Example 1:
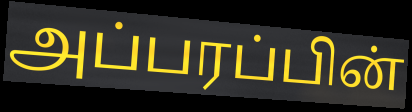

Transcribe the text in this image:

அப்பரப்பின்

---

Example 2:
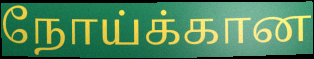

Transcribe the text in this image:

நோய்க்கான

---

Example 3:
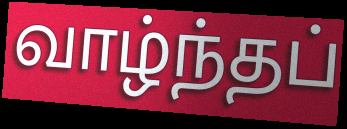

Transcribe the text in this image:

வாழ்ந்தப்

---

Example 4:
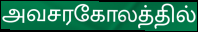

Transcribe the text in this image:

அவசரகோலத்தில்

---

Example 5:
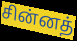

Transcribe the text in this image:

சின்னத்